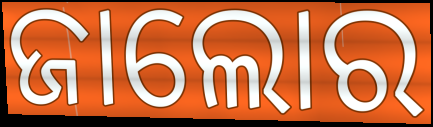
ଜାଲୋର